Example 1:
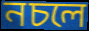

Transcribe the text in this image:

নচলে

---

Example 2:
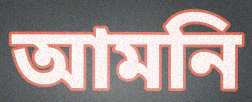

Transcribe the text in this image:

আমনি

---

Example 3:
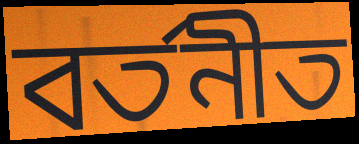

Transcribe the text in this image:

বৰ্তনীত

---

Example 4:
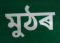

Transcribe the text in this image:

মুঠৰ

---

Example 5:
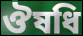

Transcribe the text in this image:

ঔষধি